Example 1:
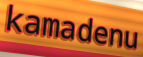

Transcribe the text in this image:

kamadenu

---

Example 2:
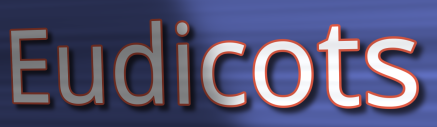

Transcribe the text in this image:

Eudicots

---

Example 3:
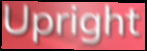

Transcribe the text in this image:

Upright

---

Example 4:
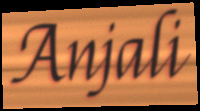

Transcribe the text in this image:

Anjali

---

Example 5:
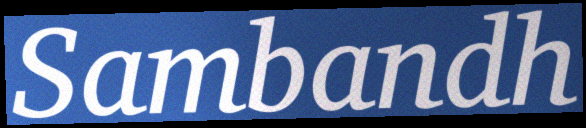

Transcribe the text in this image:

Sambandh